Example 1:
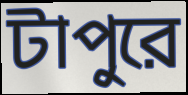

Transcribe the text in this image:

টাপুরে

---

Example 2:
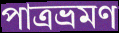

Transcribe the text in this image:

পাত্রভ্রমণ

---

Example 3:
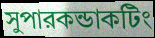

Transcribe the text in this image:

সুপারকন্ডাকটিং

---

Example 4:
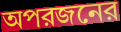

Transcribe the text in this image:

অপরজনের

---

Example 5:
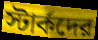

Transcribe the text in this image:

স্টার্কদের